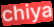
chiya